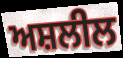
ਅਸ਼ਲੀਲ